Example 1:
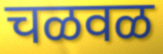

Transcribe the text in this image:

चळवळ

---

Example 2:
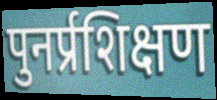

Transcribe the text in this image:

पुनर्प्रशिक्षण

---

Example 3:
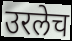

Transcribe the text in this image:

उरलेच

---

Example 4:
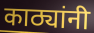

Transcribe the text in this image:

काठ्यांनी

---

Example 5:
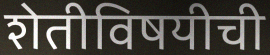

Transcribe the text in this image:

शेतीविषयीची